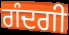
ਗੰਦਗੀ